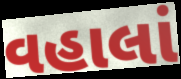
વહાલાં